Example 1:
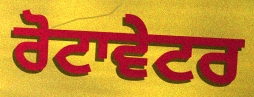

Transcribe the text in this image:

ਰੋਟਾਵੇਟਰ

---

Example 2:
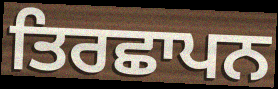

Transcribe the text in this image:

ਤਿਰਛਾਪਨ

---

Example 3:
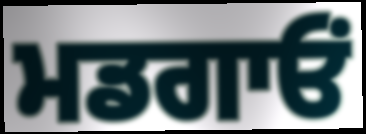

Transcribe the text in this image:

ਮਡਗਾਓਂ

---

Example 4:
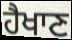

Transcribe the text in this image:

ਹੈਖਾਣ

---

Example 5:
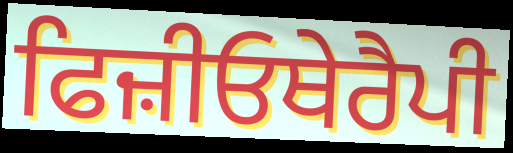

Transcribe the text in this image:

ਫਿਜ਼ੀਓਥੇਰੈਪੀ